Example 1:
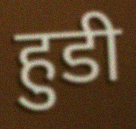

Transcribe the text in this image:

हुडी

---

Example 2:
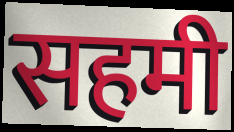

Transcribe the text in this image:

सहमी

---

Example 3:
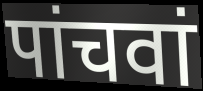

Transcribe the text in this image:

पांचवां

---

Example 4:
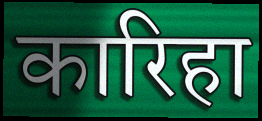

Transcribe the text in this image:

कारिहा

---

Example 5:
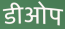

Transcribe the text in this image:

डीओप